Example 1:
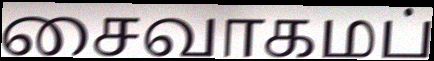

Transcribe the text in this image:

சைவாகமப்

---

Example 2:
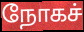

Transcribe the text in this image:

நோகச்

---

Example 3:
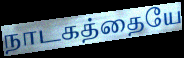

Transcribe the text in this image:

நாடகத்தையே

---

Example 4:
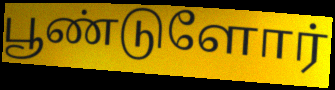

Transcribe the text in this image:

பூண்டுளோர்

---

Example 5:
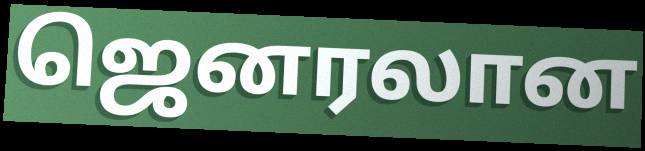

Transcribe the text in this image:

ஜெனரலான